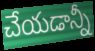
చేయడాన్నీ